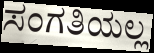
ಸಂಗತಿಯಲ್ಲ